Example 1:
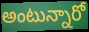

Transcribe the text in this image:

అంటున్నారో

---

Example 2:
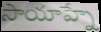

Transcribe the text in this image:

సాయాహ్నే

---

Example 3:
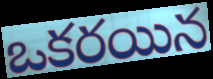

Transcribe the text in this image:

ఒకరయిన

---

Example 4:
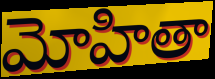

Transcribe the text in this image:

మోహితా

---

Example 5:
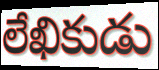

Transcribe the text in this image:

లేఖికుడు